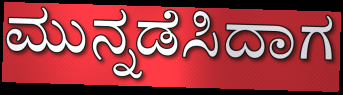
ಮುನ್ನಡೆಸಿದಾಗ